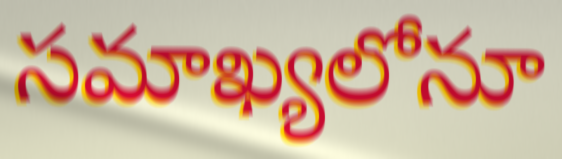
సమాఖ్యలోనూ